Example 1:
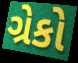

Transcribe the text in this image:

ગ્રેકો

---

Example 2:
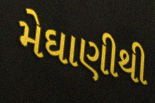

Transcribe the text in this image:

મેઘાણીથી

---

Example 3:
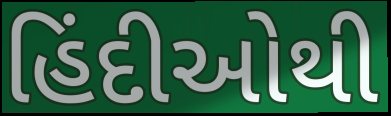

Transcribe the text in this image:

હિંદીઓથી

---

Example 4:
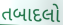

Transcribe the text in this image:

તબાદલો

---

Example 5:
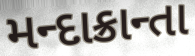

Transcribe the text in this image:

મન્દાક્રાન્તા